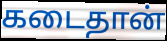
கடைதான்